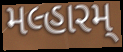
મલ્હારમ્